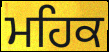
ਮਹਿਕ